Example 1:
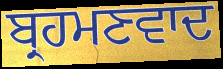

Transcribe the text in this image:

ਬ੍ਰਹਮਣਵਾਦ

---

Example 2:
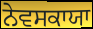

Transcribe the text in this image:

ਨੇਵਸਕਾਯਾ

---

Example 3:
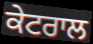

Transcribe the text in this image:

ਕੇਟਰਾਲ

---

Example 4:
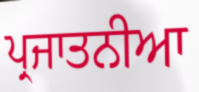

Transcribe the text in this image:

ਪ੍ਰਜਾਤਨੀਆ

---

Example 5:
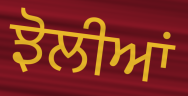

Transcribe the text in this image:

ਝੋਲੀਆਂ